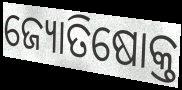
ଜ୍ୟୋତିଷୋକ୍ତ